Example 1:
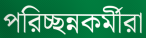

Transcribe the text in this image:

পরিচ্ছন্নকর্মীরা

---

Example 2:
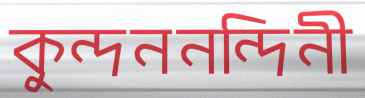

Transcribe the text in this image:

কুন্দননন্দিনী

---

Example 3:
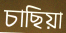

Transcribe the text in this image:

চাছিয়া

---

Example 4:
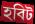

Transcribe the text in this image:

হবিট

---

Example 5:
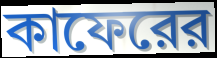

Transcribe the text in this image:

কাফেরের